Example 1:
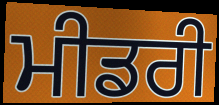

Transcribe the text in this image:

ਮੀਡਰੀ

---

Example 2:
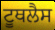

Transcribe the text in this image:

ਟੂਥਲੈਸ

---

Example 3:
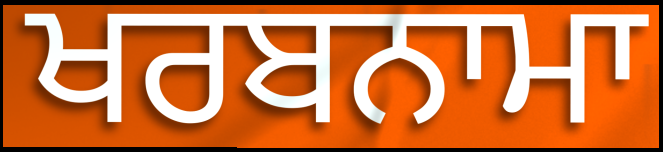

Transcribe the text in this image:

ਖਰਬਨਾਮਾ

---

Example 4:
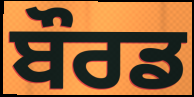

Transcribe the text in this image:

ਬੌਰਡ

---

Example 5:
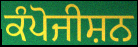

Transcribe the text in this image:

ਕੰਪੋਜੀਸ਼ਨ